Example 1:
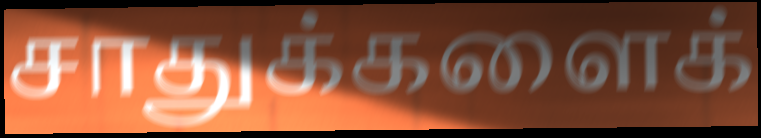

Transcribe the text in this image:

சாதுக்களைக்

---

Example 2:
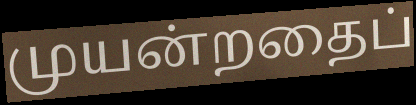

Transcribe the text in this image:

முயன்றதைப்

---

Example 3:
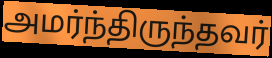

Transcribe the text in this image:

அமர்ந்திருந்தவர்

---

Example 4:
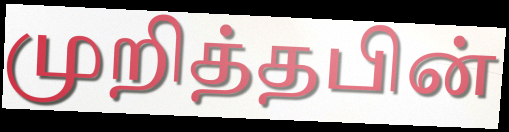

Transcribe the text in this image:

முறித்தபின்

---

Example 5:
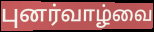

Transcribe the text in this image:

புனர்வாழ்வை